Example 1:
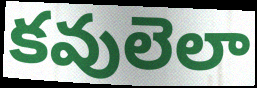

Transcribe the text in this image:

కవులెలా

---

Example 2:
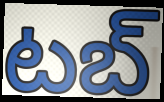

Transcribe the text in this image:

టబ్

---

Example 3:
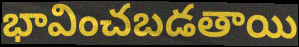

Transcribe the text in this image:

భావించబడతాయి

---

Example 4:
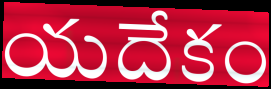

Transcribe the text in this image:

యదేకం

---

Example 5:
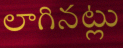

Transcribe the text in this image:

లాగినట్లు